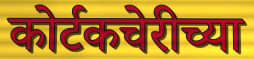
कोर्टकचेरीच्या